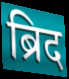
ब्रिद